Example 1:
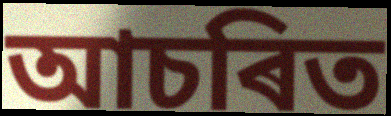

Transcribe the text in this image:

আচৰিত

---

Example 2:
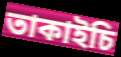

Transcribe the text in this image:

তাকাইচি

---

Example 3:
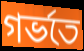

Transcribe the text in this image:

গৰ্ভতে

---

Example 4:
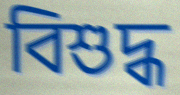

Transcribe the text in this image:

বিশুদ্ধ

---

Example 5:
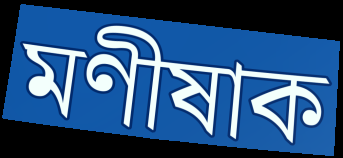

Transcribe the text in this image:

মণীষাক